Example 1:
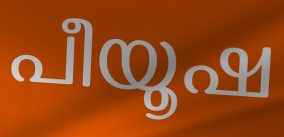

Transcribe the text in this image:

പീയൂഷ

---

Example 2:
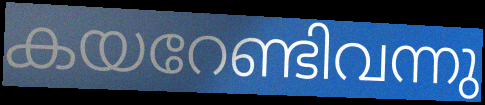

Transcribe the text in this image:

കയറേണ്ടിവന്നു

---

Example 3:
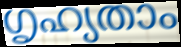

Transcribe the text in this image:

ഗൃഹ്യതാം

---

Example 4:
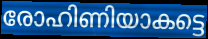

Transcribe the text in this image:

രോഹിണിയാകട്ടെ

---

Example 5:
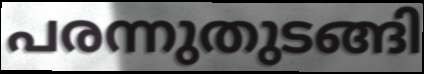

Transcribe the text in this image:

പരന്നുതുടങ്ങി